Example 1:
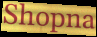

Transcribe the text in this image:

Shopna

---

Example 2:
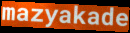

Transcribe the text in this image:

mazyakade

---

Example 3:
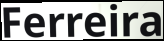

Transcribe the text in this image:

Ferreira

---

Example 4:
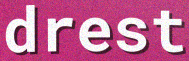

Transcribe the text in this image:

drest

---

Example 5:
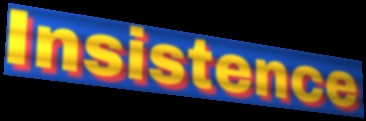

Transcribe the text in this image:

Insistence